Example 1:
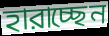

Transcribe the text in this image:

হারাচ্ছেন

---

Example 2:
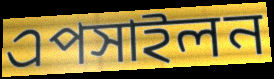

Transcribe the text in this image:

এপসাইলন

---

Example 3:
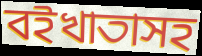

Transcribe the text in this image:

বইখাতাসহ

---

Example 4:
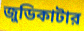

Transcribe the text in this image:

জুডিকাটার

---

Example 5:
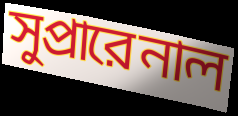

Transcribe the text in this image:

সুপ্রারেনাল